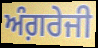
ਅੰਗ਼ਰੇਜੀ